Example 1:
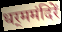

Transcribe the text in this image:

धर्ममंदिरें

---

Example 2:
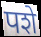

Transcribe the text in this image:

पशे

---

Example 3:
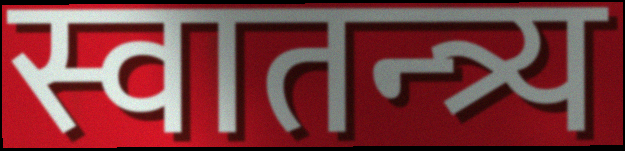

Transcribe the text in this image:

स्वातन्त्र्य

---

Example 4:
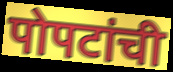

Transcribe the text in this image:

पोपटांची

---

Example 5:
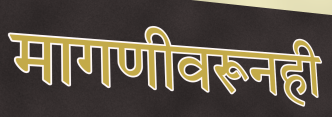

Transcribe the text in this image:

मागणीवरूनही